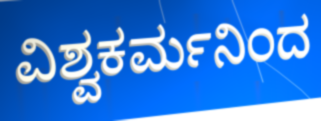
ವಿಶ್ವಕರ್ಮನಿಂದ